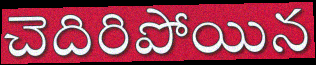
చెదిరిపోయిన